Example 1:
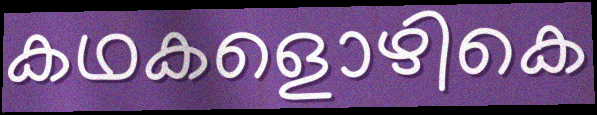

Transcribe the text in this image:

കഥകളൊഴികെ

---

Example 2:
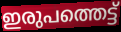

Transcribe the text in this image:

ഇരുപത്തെട്ട്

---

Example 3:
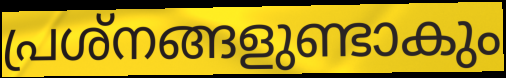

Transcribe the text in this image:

പ്രശ്നങ്ങളുണ്ടാകും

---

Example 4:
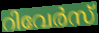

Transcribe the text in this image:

റിവേർസ്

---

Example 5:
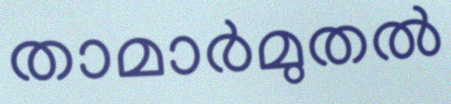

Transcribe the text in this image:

താമാർമുതൽ